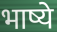
भाष्ये